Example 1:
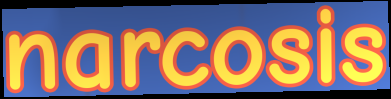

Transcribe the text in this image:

narcosis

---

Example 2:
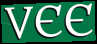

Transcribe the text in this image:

VEE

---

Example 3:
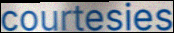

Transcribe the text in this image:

courtesies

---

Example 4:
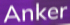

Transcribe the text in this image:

Anker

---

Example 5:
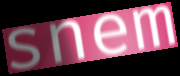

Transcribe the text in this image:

snem